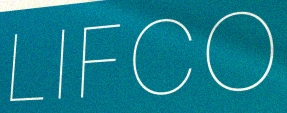
LIFCO